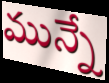
మున్నే